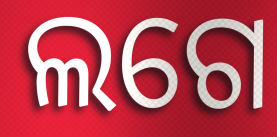
ଲଗେ